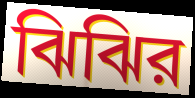
ঝিঝির